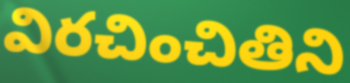
విరచించితిని